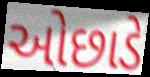
ઓછાડે